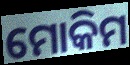
ମୋକିମ